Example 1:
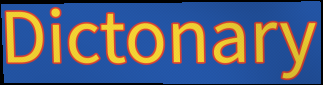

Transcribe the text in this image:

Dictonary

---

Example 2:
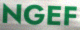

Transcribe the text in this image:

NGEF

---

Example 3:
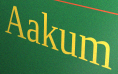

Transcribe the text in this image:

Aakum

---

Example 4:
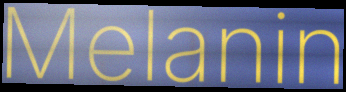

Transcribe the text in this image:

Melanin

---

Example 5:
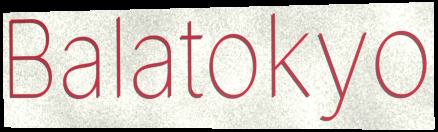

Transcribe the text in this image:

Balatokyo